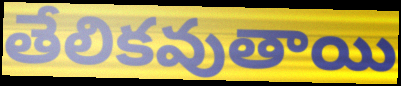
తేలికవుతాయి